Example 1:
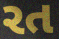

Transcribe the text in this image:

રત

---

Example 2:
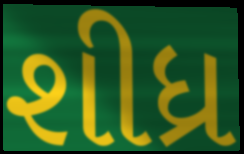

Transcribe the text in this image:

શીધ્ર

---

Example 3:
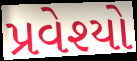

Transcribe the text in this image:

પ્રવેશ્યો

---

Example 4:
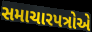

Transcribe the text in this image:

સમાચારપત્રોએ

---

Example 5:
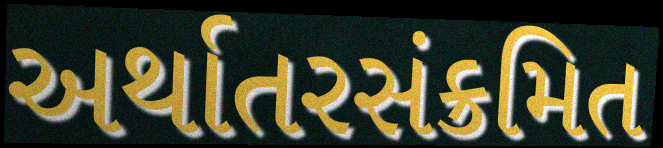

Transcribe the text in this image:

અર્થાતરસંક્રમિત